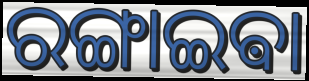
ରଙ୍ଗାଇଵା